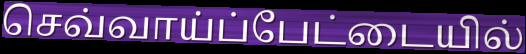
செவ்வாய்ப்பேட்டையில்